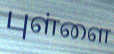
புள்ளை